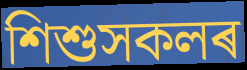
শিশুসকলৰ